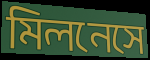
মিলনেসে